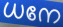
ധനേ